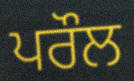
ਪਰੌਲ